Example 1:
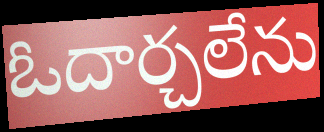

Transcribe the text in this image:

ఓదార్చలేను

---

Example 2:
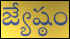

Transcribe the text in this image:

జ్యేష్ఠం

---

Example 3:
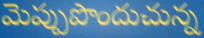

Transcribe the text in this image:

మెప్పుపొందుచున్న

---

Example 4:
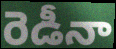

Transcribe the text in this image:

రెడీనా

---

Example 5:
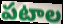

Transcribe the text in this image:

పటాల